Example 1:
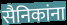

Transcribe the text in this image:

सैनिकांना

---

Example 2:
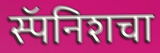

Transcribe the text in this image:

स्पॅनिशचा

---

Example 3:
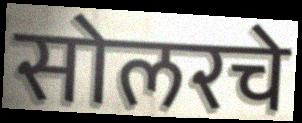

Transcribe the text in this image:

सोलरचे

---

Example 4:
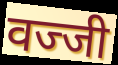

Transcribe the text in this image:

वज्जी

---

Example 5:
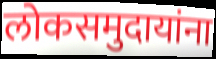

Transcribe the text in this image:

लोकसमुदायांना